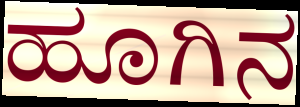
ಹೂಗಿನ